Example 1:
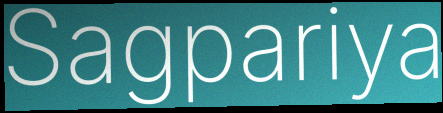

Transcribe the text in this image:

Sagpariya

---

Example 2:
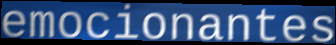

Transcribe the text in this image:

emocionantes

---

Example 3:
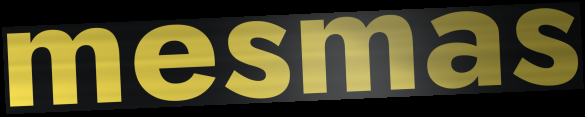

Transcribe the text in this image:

mesmas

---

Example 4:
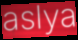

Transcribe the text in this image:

aslya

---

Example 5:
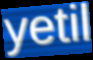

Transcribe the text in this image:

yetil